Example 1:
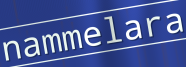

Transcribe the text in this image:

nammelara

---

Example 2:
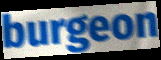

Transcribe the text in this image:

burgeon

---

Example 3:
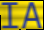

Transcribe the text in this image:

IA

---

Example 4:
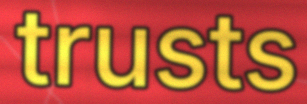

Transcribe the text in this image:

trusts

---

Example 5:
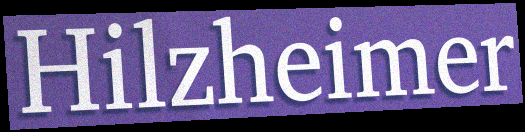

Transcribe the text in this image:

Hilzheimer